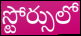
స్టోర్సులో